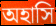
অহাসি